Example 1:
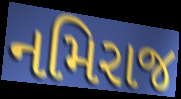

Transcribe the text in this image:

નમિરાજ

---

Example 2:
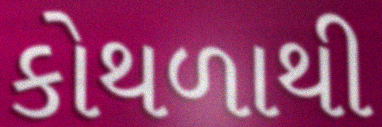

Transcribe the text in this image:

કોથળાથી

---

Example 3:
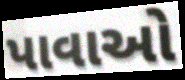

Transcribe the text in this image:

પાવાઓ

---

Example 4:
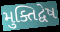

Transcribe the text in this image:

મુક્તિદ્વેષ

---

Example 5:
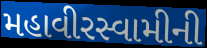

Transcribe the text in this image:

મહાવીરસ્વામીની